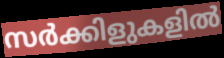
സർക്കിളുകളിൽ